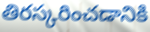
తిరస్కరించడానికి